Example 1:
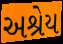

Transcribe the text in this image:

અશ્રેય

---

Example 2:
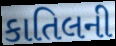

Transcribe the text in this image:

કાતિલની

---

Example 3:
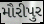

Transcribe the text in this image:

મૌરીપુર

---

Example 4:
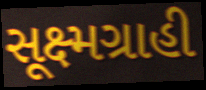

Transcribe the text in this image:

સૂક્ષ્મગ્રાહી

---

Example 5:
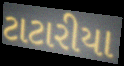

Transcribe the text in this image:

ટાટારીયા